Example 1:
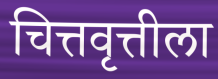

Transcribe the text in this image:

चित्तवृत्तीला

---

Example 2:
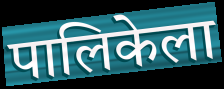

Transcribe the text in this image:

पालिकेला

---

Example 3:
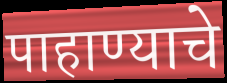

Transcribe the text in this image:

पाहाण्याचे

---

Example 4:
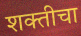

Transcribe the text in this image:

शक्‍तीचा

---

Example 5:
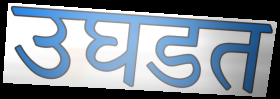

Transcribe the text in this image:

उघडत